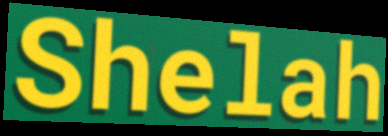
Shelah